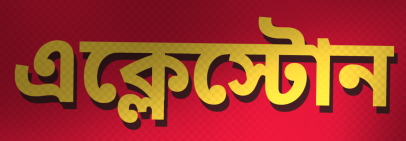
এক্লেস্টোন